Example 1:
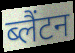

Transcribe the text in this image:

ब्लैंटन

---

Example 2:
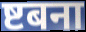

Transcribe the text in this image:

ष्टबना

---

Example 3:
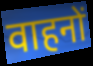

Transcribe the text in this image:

वाहनों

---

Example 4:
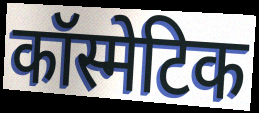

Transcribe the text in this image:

कॉस्मेटिक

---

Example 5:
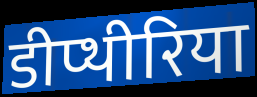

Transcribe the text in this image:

डीप्थीरिया